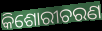
କିଶୋରୀଚରଣ